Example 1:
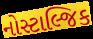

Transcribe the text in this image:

નોસ્ટાલ્જિક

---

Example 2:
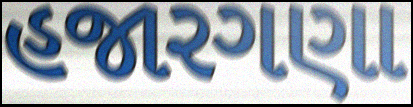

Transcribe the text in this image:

હજારગણા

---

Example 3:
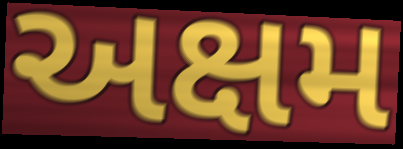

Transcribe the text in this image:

અક્ષમ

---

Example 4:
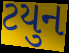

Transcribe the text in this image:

ટયુન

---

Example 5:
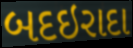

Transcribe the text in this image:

બદઇરાદા